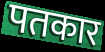
पतकार